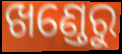
ଖଣ୍ଡେରୁ